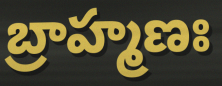
బ్రాహ్మణః